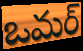
ఒమర్